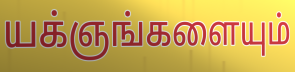
யக்ஞங்களையும்